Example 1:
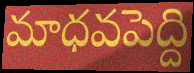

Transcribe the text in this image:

మాధవపెద్ది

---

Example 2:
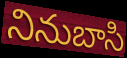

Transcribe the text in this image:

నినుబాసి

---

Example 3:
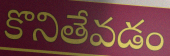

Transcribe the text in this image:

కొనితేవడం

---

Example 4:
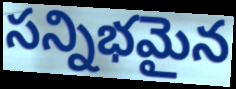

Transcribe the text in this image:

సన్నిభమైన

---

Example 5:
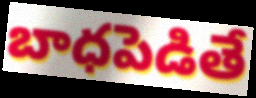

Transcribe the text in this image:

బాధపెడితే